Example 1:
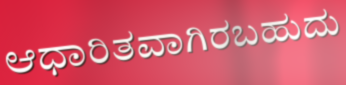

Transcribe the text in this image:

ಆಧಾರಿತವಾಗಿರಬಹುದು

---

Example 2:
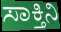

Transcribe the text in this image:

ಸಾಕ್ತಿನಿ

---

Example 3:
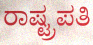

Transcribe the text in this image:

ರಾಷ್ಟ್ರಪತಿ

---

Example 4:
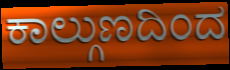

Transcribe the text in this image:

ಕಾಲ್ಗುಣದಿಂದ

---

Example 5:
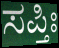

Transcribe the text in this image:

ಸಪ್ತಿಃ